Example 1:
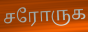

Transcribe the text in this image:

சரோருக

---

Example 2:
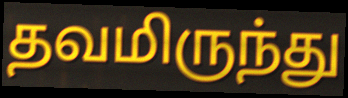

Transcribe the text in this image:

தவமிருந்து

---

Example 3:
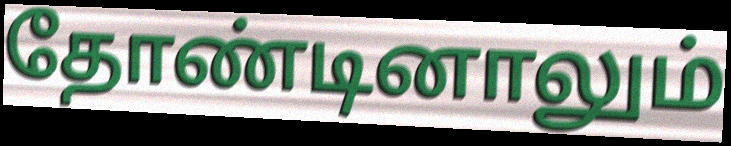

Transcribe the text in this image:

தோண்டினாலும்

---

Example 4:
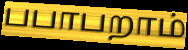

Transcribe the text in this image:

பபாபறாம்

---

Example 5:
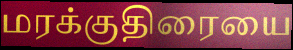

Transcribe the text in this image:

மரக்குதிரையை